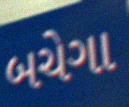
બચેગા